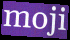
moji